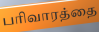
பரிவாரத்தை